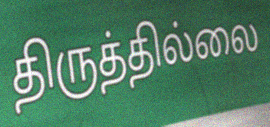
திருத்தில்லை